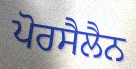
ਪੋਰਸੈਲੈਨ